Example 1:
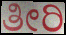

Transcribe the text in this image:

ತೀರಿ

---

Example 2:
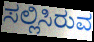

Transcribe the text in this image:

ಸಲ್ಲಿಸಿರುವ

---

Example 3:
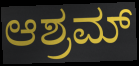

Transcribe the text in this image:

ಆಶ್ರಮ್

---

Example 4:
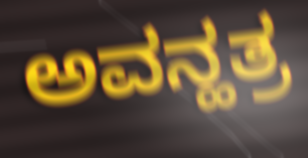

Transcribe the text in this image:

ಅವನ್ಹತ್ರ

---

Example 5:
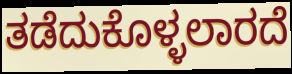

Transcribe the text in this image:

ತಡೆದುಕೊಳ್ಳಲಾರದೆ